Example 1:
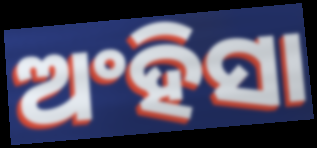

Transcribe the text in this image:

ଅଂହିସା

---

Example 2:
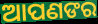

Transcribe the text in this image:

ଆପଣଙର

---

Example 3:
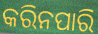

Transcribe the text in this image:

କରିନପାରି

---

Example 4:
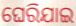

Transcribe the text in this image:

ଘେରିଯାଇ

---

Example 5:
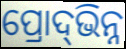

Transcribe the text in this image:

ପ୍ରୋଦ୍‌ଭିନ୍ନ